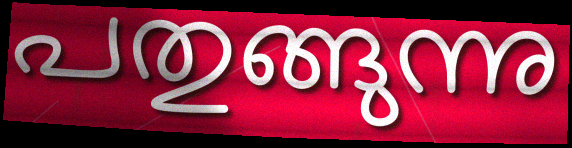
പതുങ്ങുന്നു